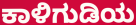
ಕಾಳಿಗುಡಿಯ